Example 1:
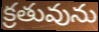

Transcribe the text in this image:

క్రతువును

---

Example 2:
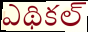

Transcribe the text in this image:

ఎథికల్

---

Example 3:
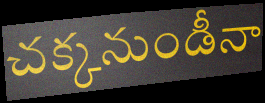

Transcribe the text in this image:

చక్కనుండీనా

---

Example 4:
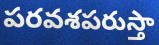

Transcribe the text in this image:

పరవశపరుస్తా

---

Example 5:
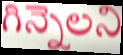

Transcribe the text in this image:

గిన్నెలని